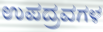
ಉಪದ್ರವಗಳ